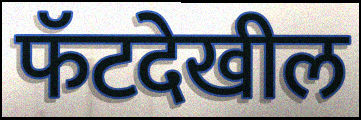
फॅटदेखील